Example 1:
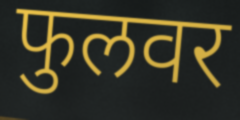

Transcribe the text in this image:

फुलवर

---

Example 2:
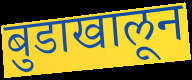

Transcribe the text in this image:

बुडाखालून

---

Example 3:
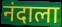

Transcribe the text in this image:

नंदाला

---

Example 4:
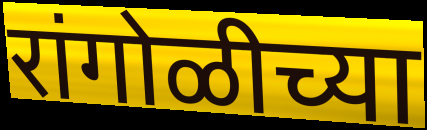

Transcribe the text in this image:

रांगोळीच्या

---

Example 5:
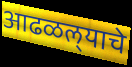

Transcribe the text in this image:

आढळल्याचे